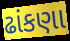
ઢાંકણા